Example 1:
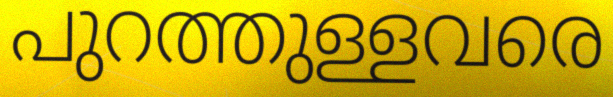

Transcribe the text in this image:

പുറത്തുള്ളവരെ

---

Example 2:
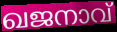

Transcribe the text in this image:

ഖജനാവ്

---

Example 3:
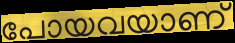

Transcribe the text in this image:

പോയവയാണ്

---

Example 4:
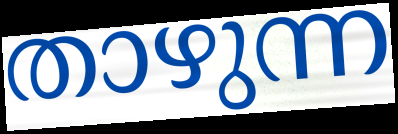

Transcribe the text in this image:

താഴുന്ന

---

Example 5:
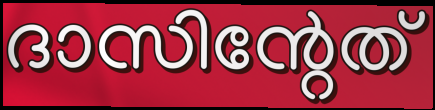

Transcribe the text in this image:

ദാസിന്റേത്